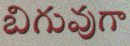
బిగువుగా